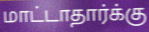
மாட்டாதார்க்கு